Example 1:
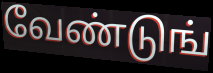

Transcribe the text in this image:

வேண்டுங்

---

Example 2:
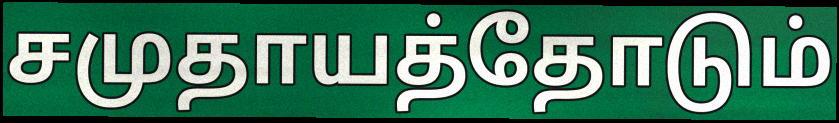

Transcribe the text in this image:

சமுதாயத்தோடும்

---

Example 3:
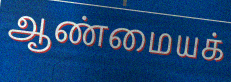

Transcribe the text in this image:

ஆண்மையக்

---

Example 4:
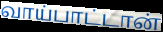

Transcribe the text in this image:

வாய்பாட்டான்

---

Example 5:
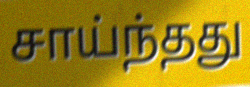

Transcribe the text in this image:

சாய்ந்தது